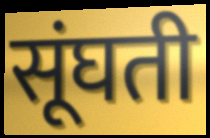
सूंघती